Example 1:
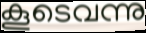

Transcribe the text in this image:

കൂടെവന്നു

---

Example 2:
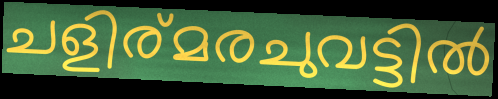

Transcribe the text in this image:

ചളിര്മരചുവട്ടിൽ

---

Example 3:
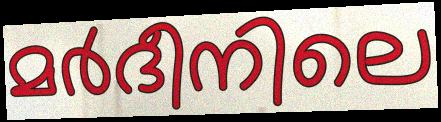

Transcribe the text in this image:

മർദീനിലെ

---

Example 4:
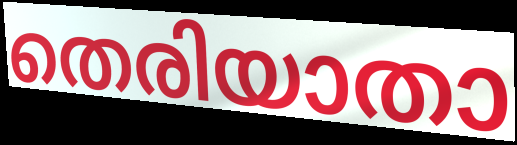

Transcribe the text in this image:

തെരിയാതാ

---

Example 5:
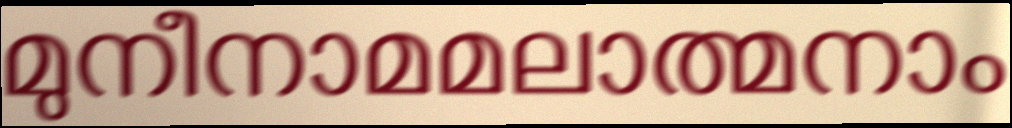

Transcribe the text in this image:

മുനീനാമമലാത്മനാം